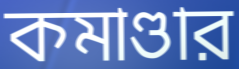
কমাণ্ডার